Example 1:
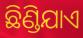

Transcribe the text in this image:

ଛିଣ୍ଡିଯାଏ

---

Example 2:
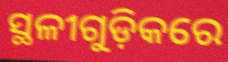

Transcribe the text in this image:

ସ୍ଥଳୀଗୁଡ଼ିକରେ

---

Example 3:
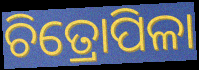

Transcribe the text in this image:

ଚିତ୍ରୋପିଳା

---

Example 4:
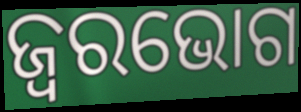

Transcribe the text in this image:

ଜ୍ୱରଭୋଗ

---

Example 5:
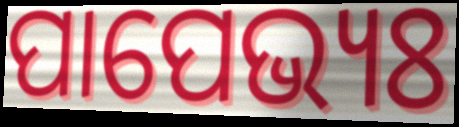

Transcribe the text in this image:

ପାପେଭ୍ୟଃ